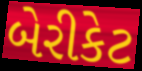
બેરીકેટ